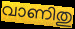
വാണിതു